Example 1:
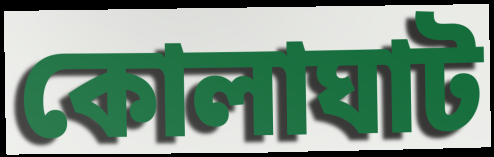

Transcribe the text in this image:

কোলাঘাট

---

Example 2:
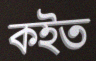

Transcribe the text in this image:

কইত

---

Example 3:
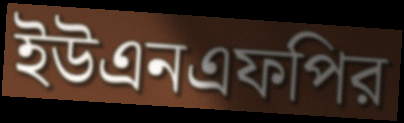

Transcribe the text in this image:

ইউএনএফপির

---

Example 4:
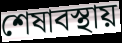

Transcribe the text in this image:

শেষাবস্থায়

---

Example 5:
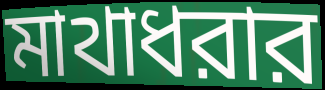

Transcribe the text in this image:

মাথাধরার